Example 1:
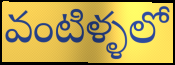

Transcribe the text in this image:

వంటిళ్ళలో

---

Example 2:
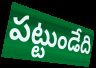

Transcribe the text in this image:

పట్టుండేది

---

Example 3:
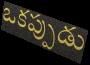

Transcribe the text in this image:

ఒకప్పుడు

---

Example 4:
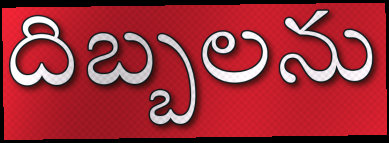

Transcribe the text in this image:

దిబ్బలను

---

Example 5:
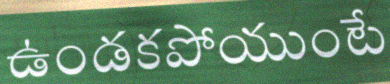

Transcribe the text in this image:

ఉండకపోయుంటే